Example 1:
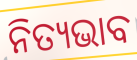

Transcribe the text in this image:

ନିତ୍ୟଭାବ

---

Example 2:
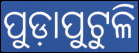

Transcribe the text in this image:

ପୁଡ଼ାପୁଟୁଳି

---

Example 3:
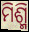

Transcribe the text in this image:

ମିଶ୍ମି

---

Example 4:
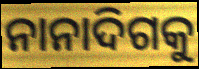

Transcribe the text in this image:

ନାନାଦିଗକୁ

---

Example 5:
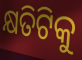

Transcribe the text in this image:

କ୍ଷତିଟିକୁ